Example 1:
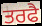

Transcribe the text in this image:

ਤਰਫੈ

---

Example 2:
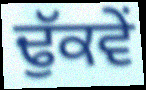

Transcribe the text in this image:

ਢੁੱਕਵੇਂ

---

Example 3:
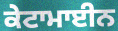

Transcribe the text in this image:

ਕੇਟਾਮਾਈਨ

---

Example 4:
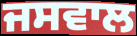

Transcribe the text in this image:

ਜਸਵਾਲ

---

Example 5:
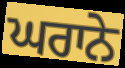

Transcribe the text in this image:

ਘਰਾਨੇ